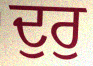
ਦੁਰੁ